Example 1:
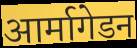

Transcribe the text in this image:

आर्मागेडन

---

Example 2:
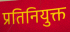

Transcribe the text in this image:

प्रतिनियुक्त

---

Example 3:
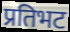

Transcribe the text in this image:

प्रतिभट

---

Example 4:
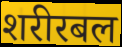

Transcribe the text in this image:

शरीरबल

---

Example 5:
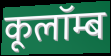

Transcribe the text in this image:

कूलॉम्ब